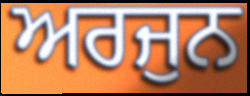
ਅਰਜੁਨ